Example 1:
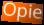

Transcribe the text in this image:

Opie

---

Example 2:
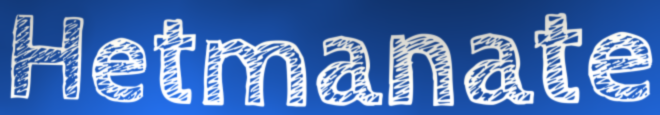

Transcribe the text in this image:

Hetmanate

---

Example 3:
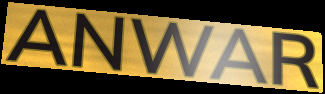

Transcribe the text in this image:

ANWAR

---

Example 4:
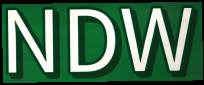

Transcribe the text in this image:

NDW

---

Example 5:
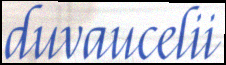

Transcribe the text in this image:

duvaucelii